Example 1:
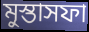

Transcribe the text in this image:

মুস্তাসফা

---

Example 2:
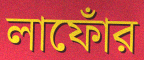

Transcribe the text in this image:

লাফোঁর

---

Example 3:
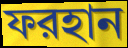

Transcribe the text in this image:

ফরহান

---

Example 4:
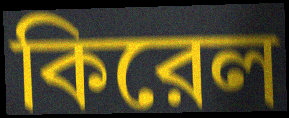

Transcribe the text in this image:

কিরেল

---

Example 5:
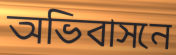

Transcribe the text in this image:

অভিবাসনে